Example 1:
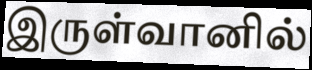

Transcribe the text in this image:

இருள்வானில்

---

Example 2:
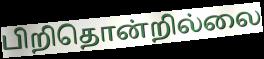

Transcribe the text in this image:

பிறிதொன்றில்லை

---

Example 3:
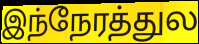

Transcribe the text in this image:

இந்நேரத்துல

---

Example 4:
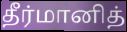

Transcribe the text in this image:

தீர்மானித்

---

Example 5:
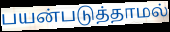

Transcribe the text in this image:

பயன்படுத்தாமல்